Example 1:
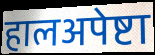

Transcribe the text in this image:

हालअपेष्टा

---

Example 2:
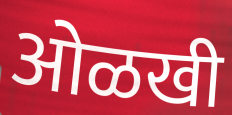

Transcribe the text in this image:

ओळखी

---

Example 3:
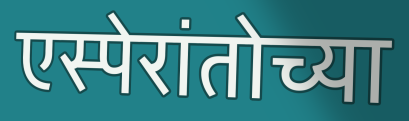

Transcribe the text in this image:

एस्पेरांतोच्या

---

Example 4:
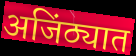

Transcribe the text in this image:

अजिंठ्यात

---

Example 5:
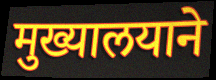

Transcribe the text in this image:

मुख्यालयाने